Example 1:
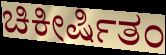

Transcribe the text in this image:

ಚಿಕೀರ್ಷಿತಂ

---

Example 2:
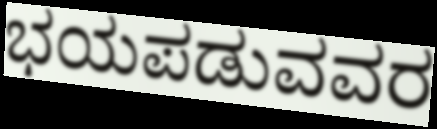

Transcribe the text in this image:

ಭಯಪಡುವವರ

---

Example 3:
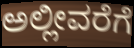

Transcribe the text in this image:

ಅಲ್ಲೀವರೆಗೆ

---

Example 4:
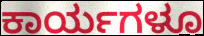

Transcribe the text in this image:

ಕಾರ್ಯಗಳೂ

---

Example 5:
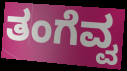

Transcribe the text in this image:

ತಂಗೆವ್ವ